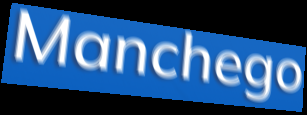
Manchego